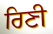
ਰਿਣੀ